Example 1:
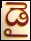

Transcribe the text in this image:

డై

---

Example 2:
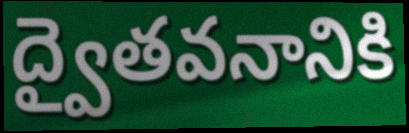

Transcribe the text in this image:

ద్వైతవనానికి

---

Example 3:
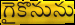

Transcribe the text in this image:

గైకొనును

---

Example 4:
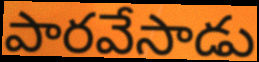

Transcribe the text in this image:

పారవేసాడు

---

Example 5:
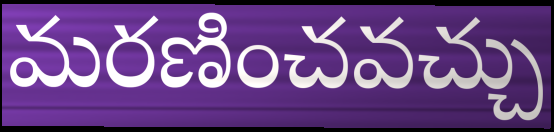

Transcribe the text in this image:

మరణించవచ్చు